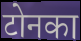
टोनका